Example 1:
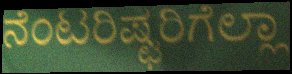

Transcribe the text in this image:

ನೆಂಟರಿಷ್ಟರಿಗೆಲ್ಲಾ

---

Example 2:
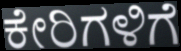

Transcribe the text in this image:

ಕೇರಿಗಳಿಗೆ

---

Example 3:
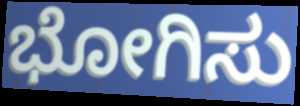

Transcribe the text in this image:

ಭೋಗಿಸು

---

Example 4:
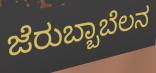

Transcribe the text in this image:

ಜೆರುಬ್ಬಾಬೆಲನ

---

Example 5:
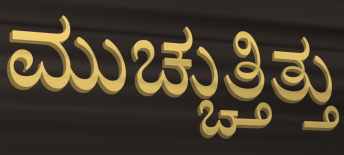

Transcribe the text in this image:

ಮುಚ್ಚುತ್ತಿತ್ತು